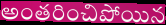
అంతరించిపోయిన